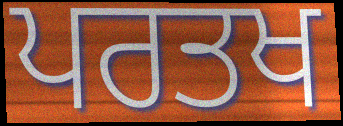
ਪਰਤਖ